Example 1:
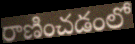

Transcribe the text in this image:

రాణించడంలో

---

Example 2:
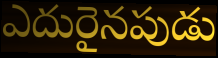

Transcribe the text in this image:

ఎదురైనపుడు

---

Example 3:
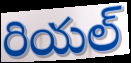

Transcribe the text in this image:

రియల్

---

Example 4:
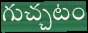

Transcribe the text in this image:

గుచ్చటం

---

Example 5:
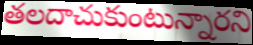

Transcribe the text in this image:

తలదాచుకుంటున్నారని